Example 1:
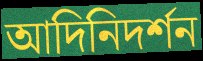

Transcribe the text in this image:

আদিনিদর্শন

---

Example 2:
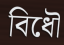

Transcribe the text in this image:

বিধৌ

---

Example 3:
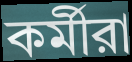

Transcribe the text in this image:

কর্মীরা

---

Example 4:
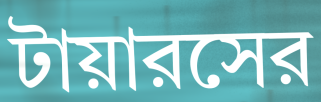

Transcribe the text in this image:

টায়ারসের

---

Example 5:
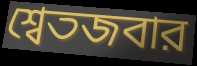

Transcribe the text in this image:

শ্বেতজবার